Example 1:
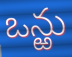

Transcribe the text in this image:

ఒన్ఱు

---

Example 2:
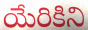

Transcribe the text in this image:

యేరికిని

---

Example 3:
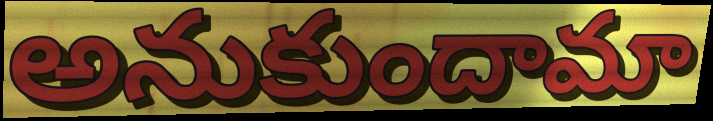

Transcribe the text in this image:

అనుకుందామా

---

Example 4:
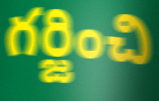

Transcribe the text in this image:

గర్జించి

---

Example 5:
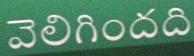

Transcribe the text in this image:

వెలిగిందది